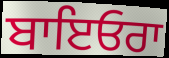
ਬਾਇਓਰਾ